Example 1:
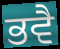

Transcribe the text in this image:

ਭਵੈ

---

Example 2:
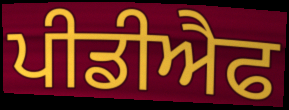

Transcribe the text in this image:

ਪੀਡੀਐਫ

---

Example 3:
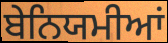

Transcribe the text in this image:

ਬੇਨਿਯਮੀਆਂ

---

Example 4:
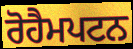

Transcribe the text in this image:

ਰੋਹੈਮਪਟਨ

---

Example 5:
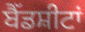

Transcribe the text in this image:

ਬੈੱਡਸ਼ੀਟਾਂ